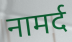
नामर्द